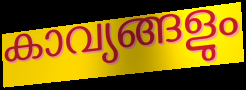
കാവ്യങ്ങളും